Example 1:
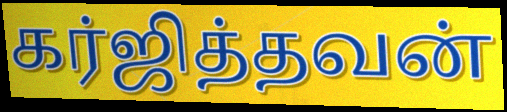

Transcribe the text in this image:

கர்ஜித்தவன்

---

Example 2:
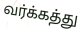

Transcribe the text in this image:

வர்க்கத்து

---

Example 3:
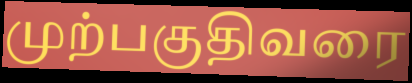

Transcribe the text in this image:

முற்பகுதிவரை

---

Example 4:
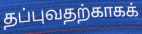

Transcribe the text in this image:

தப்புவதற்காகக்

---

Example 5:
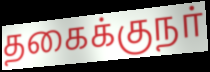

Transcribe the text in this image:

தகைக்குநர்